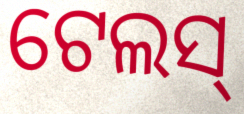
ଟେଲସ୍